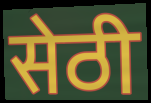
सेठी